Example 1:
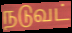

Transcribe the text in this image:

நடுவட்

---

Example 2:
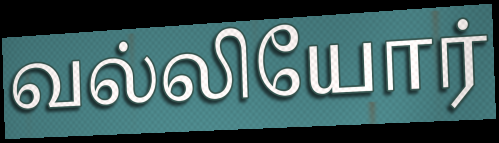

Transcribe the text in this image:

வல்லியோர்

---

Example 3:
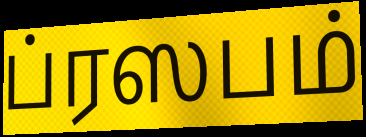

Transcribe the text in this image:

ப்ரஸபம்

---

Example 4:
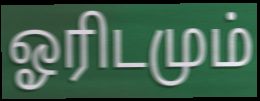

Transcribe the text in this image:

ஓரிடமும்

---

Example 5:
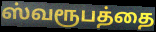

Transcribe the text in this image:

ஸ்வரூபத்தை